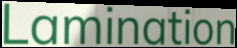
Lamination